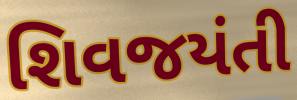
શિવજયંતી